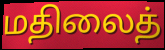
மதிலைத்